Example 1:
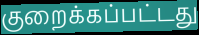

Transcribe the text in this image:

குறைக்கப்பட்டது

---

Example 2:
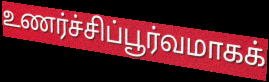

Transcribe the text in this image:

உணர்ச்சிப்பூர்வமாகக்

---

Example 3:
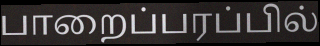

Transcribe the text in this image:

பாறைப்பரப்பில்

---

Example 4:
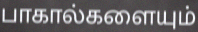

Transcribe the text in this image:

பாகால்களையும்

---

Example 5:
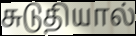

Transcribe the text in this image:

சுடுதியால்